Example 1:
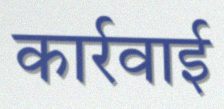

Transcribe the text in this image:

कार्रवाई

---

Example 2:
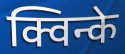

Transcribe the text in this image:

क्विन्के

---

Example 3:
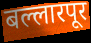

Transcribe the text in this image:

बल्लारपूर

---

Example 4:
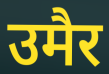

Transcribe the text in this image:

उमैर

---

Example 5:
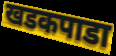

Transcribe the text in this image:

खडकपाडा